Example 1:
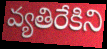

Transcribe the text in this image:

వ్యతిరేకిని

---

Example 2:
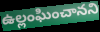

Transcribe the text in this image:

ఉల్లంఘించానని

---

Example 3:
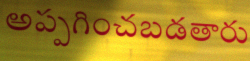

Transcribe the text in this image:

అప్పగించబడతారు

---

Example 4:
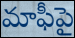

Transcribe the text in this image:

మాఫీపై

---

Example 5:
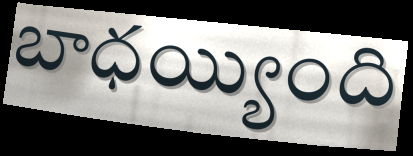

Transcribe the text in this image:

బాధయ్యింది